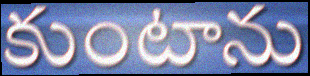
కుంటాను